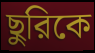
ছুরিকে